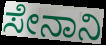
ಸೇನಾನಿ